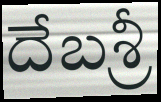
దేబశ్రీ